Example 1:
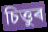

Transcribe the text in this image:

চিত্তুৰ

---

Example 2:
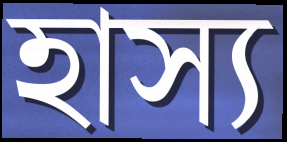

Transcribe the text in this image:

হাস্য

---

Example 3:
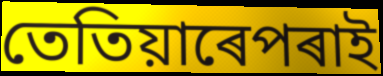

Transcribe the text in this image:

তেতিয়াৰেপৰাই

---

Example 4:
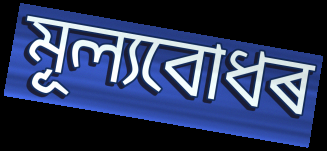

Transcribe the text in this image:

মূল্যবোধৰ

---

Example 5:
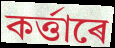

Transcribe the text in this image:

কৰ্ত্তাৰে